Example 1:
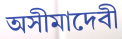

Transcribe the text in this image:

অসীমাদেবী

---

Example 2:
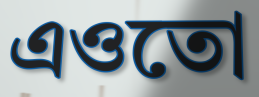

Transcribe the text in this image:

এওতো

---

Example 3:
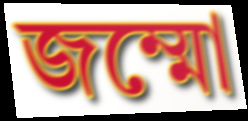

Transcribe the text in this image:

জম্মো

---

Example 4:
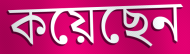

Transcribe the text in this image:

কয়েছেন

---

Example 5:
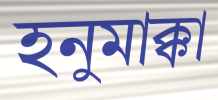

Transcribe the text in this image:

হনুমাক্কা